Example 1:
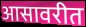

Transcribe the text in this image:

आसावरीत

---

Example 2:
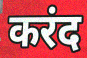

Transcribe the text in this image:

करंद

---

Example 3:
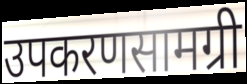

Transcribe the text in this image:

उपकरणसामग्री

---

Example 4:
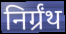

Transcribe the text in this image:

निर्ग्रंथ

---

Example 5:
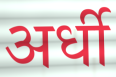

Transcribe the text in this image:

अर्धी